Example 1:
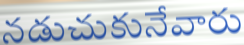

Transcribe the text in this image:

నడుచుకునేవారు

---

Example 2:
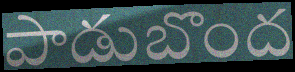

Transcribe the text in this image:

పాడుబొంద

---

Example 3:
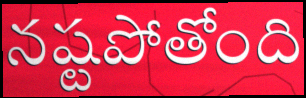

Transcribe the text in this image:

నష్టపోతోంది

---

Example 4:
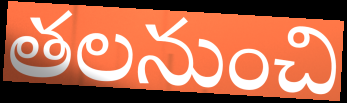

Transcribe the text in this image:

తలనుంచి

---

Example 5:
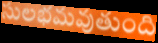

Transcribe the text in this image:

సులభమవుతుంది